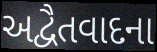
અદ્વૈતવાદના